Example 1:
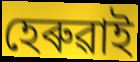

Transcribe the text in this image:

হেৰুৱাই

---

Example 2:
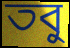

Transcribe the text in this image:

তবু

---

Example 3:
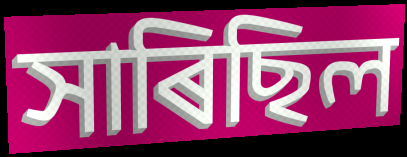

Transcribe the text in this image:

সাৰিছিল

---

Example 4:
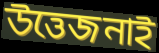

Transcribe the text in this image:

উত্তেজনাই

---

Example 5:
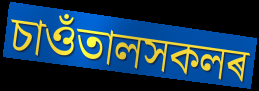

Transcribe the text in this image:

চাওঁতালসকলৰ